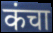
कंचा